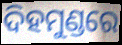
ଦିହମୁଣ୍ଡରେ